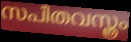
സപീതവസ്ത്രം